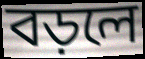
বড়লে